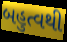
બહુત્વથી